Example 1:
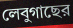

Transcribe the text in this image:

লেবুগাছের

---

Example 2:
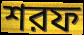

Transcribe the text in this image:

শরফ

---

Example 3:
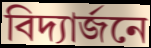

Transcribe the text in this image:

বিদ্যার্জনে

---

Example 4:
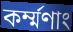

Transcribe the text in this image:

কর্ম্মণাং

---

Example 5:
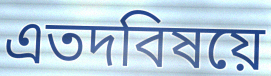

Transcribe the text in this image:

এতদবিষয়ে